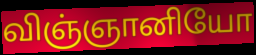
விஞ்ஞானியோ